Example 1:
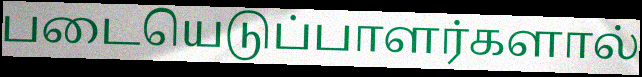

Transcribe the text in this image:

படையெடுப்பாளர்களால்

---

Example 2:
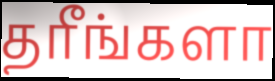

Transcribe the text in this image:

தரீங்களா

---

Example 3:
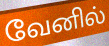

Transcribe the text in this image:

வேனில்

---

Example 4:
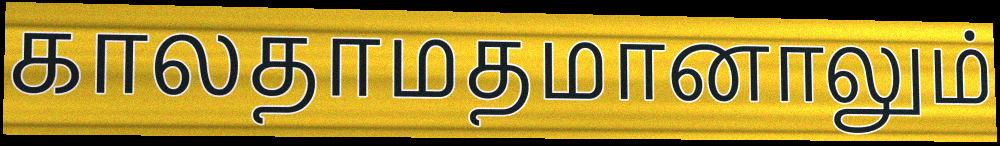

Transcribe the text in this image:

காலதாமதமானாலும்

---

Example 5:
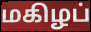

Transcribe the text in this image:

மகிழப்